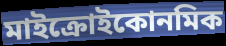
মাইক্রোইকোনমিক